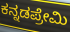
ಕನ್ನಡಪ್ರೇಮಿ